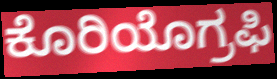
ಕೊರಿಯೊಗ್ರಫಿ